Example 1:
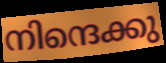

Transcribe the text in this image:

നിന്ദെക്കു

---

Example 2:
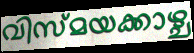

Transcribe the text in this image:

വിസ്മയക്കാഴ്ച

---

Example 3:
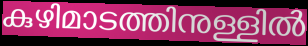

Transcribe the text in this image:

കുഴിമാടത്തിനുള്ളിൽ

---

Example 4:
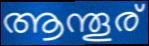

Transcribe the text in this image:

ആന്തൂര്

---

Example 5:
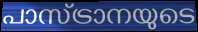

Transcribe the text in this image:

പാസ്ട്രാനയുടെ